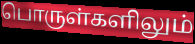
பொருள்களிலும்